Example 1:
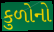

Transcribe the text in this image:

કુળોનો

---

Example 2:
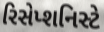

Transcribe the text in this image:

રિસેપ્શનિસ્ટે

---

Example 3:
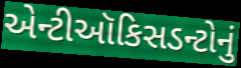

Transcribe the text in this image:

એન્ટીઑકિસડન્ટોનું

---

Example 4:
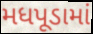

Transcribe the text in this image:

મધપૂડામાં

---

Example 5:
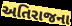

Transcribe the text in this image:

અતિરાજના